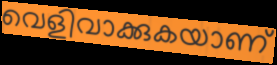
വെളിവാക്കുകയാണ്